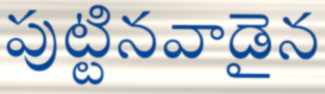
పుట్టినవాడైన